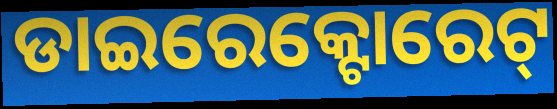
ଡାଇରେକ୍ଟୋରେଟ୍